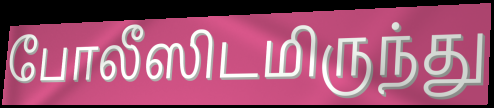
போலீஸிடமிருந்து